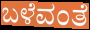
ಬಳೆವಂತೆ